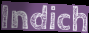
Indich